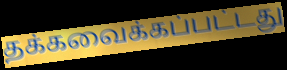
தக்கவைக்கப்பட்டது